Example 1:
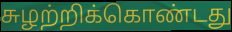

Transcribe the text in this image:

சுழற்றிக்கொண்டது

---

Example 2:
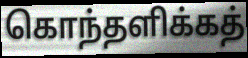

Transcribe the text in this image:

கொந்தளிக்கத்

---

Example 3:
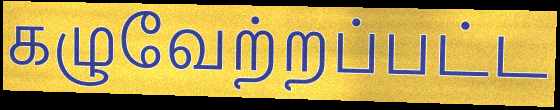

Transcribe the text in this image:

கழுவேற்றப்பட்ட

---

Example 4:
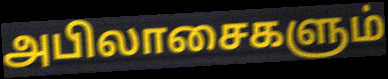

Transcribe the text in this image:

அபிலாசைகளும்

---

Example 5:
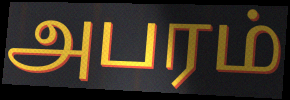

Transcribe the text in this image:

அபரம்